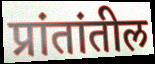
प्रांतांतील